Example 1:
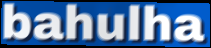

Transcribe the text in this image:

bahulha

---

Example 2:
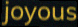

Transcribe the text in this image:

joyous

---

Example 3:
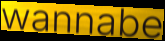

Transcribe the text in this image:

wannabe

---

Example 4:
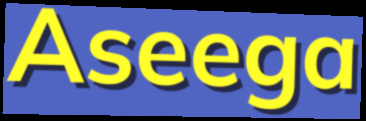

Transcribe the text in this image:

Aseega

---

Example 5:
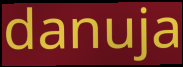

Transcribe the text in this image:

danuja